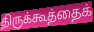
திருக்கூத்தைக்